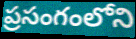
ప్రసంగంలోని